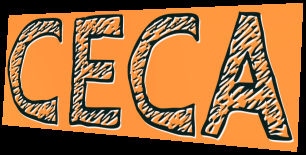
CECA